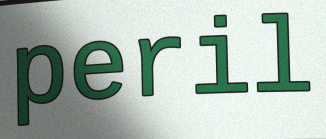
peril